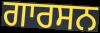
ਗਾਰਸਨ